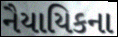
નૈયાયિકના